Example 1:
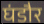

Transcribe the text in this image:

घंडौर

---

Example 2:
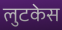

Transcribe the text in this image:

लुटकेस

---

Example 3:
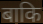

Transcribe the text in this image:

बाकि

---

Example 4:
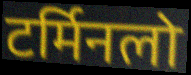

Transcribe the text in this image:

टर्मिनलो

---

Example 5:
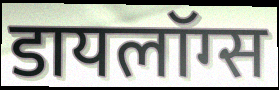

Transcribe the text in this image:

डायलॉग्स